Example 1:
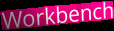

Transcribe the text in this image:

Workbench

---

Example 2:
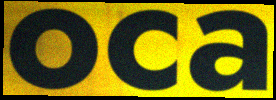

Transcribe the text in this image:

oca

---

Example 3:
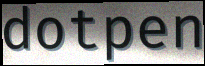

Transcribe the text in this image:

dotpen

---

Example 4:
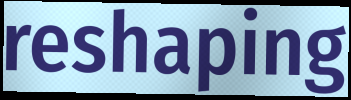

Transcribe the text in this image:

reshaping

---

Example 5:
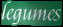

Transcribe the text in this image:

legumes